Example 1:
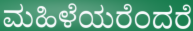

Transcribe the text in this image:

ಮಹಿಳೆಯರೆಂದರೆ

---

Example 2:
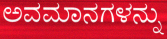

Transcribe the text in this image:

ಅವಮಾನಗಳನ್ನು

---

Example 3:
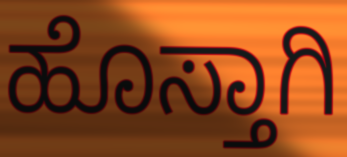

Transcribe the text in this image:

ಹೊಸ್ತಾಗಿ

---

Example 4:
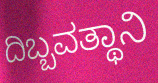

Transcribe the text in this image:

ದಿಬ್ಬವತ್ಥಾನಿ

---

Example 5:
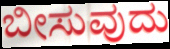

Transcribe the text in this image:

ಬೀಸುವುದು